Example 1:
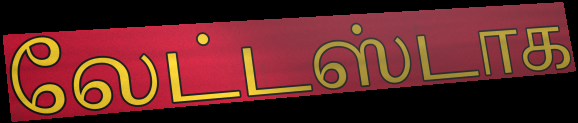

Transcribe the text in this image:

லேட்டஸ்டாக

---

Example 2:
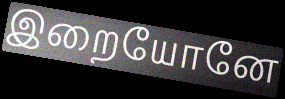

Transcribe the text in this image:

இறையோனே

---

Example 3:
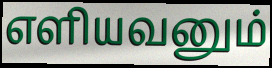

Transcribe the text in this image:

எளியவனும்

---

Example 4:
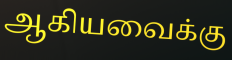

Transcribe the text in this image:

ஆகியவைக்கு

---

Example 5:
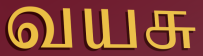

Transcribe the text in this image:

வயசு